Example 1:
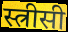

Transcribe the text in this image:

स्त्रीसी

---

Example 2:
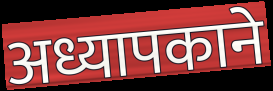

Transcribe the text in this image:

अध्यापकाने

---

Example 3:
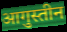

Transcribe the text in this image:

आगुस्तीन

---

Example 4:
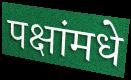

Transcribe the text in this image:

पक्षांमधे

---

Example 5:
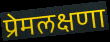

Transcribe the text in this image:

प्रेमलक्षणा